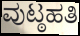
ವುಟ್ಠಹತಿ